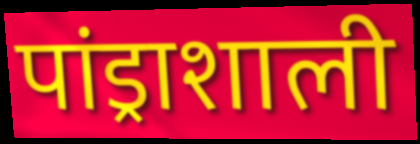
पांड्राशाली